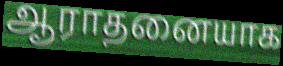
ஆராதனையாக